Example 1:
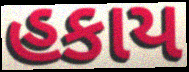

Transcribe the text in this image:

હકાય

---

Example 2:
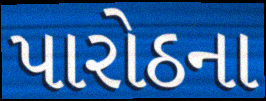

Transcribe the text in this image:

પારોઠના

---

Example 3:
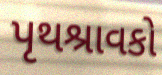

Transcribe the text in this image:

પૃથશ્રાવકો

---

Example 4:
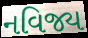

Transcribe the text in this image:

નવિજ્ય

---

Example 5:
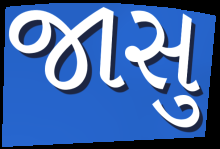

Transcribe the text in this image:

જાસુ